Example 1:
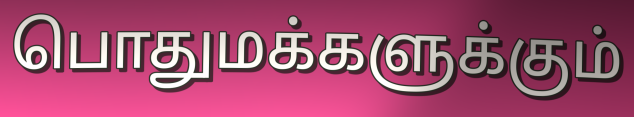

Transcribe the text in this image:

பொதுமக்களுக்கும்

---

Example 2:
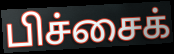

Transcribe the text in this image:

பிச்சைக்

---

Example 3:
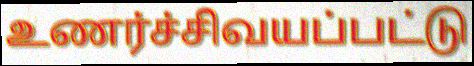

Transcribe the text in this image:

உணர்ச்சிவயப்பட்டு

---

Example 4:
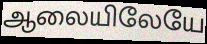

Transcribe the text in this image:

ஆலையிலேயே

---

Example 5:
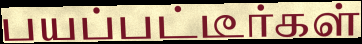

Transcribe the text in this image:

பயப்பட்டீர்கள்